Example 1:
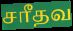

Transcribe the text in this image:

சரீதவ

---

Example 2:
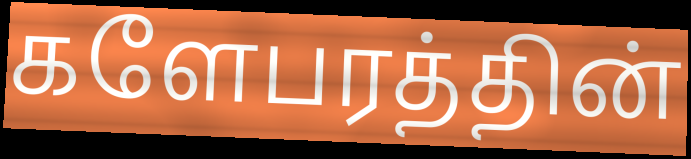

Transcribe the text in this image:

களேபரத்தின்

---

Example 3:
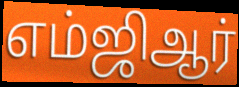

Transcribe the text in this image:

எம்ஜிஆர்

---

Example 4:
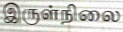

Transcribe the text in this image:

இருள்நிலை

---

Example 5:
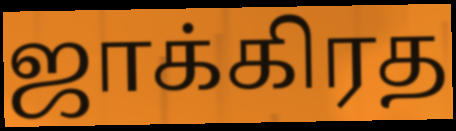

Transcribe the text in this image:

ஜாக்கிரத